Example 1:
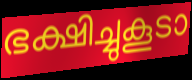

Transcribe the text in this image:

ഭക്ഷിച്ചുകൂടാ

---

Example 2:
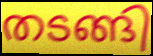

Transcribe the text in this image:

തടങ്ങി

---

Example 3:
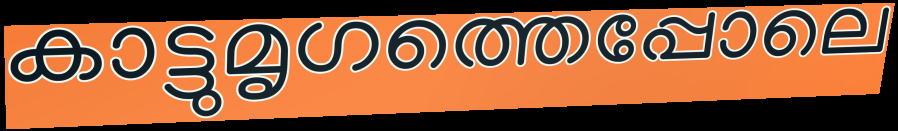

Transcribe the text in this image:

കാട്ടുമൃഗത്തെപ്പോലെ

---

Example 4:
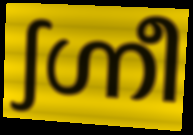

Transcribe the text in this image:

ഽഗ്നീ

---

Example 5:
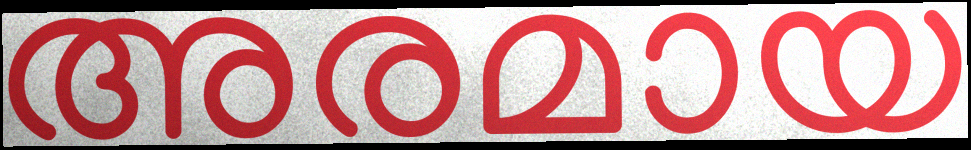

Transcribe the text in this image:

അരമായ